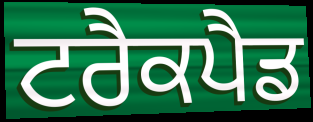
ਟਰੈਕਪੈਡ